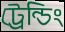
ট্রেন্ডিং